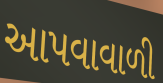
આપવાવાળી